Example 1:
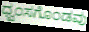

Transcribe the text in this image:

ಧ್ವಂಸಗೊಂಡವು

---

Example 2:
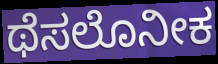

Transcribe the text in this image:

ಥೆಸಲೊನೀಕ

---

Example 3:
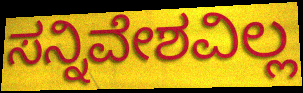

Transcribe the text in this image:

ಸನ್ನಿವೇಶವಿಲ್ಲ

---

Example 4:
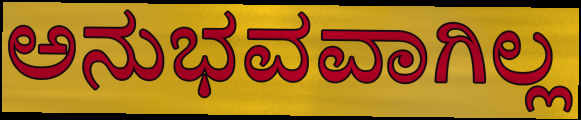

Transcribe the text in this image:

ಅನುಭವವಾಗಿಲ್ಲ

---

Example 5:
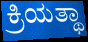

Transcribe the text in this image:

ಕ್ರಿಯತ್ಥಾ